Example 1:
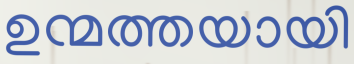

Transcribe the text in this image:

ഉന്മത്തയായി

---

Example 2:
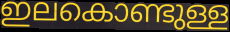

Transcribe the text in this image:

ഇലകൊണ്ടുള്ള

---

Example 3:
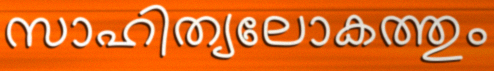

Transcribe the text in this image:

സാഹിത്യലോകത്തും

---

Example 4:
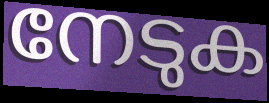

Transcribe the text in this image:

നേടുക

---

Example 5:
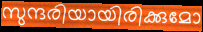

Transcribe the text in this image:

സുന്ദരിയായിരിക്കുമോ